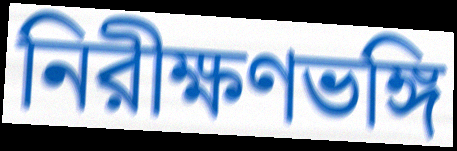
নিরীক্ষণভঙ্গি